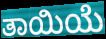
ತಾಯಿಯೆ